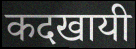
कदखायी